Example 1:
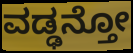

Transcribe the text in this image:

ವಡ್ಢನ್ತೋ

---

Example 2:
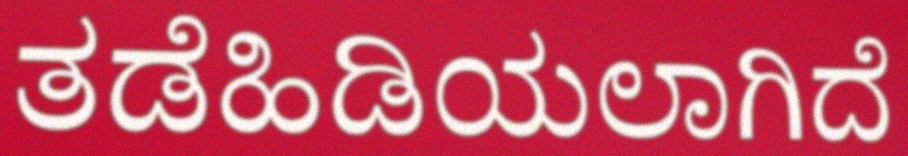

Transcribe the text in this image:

ತಡೆಹಿಡಿಯಲಾಗಿದೆ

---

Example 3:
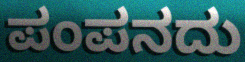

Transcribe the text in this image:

ಪಂಪನದು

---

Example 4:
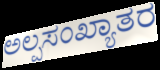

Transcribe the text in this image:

ಅಲ್ಪಸಂಖ್ಯಾತರ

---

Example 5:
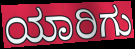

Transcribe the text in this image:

ಯಾರಿಗು